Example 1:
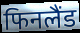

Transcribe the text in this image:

फिनलैंड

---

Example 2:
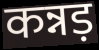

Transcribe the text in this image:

कन्नड़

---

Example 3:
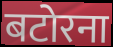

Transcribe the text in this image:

बटोरना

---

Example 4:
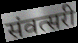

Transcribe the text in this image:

संवत्सरी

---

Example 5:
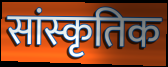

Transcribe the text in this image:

सांस्‍कृतिक